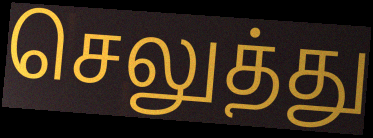
செலுத்து